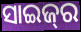
ସାଇଜ୍‌ର